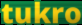
tukro